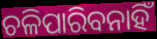
ଚଳିପାରିବନାହିଁ